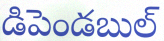
డిపెండబుల్